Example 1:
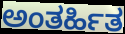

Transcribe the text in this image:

ಅಂತರ್ಹಿತ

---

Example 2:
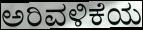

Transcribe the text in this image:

ಅರಿವಳಿಕೆಯ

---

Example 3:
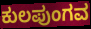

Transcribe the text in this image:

ಕುಲಪುಂಗವ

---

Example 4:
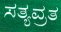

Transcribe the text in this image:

ಸತ್ಯವ್ರತ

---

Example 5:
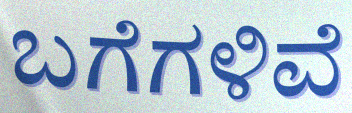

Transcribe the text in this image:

ಬಗೆಗಳಿವೆ